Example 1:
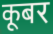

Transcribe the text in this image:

कूबर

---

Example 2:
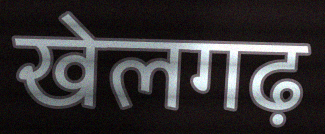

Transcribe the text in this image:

खेलगढ़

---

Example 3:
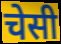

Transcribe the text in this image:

चेसी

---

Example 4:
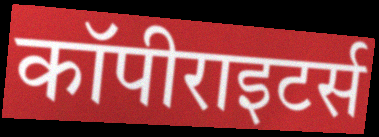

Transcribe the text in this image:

कॉपीराइटर्स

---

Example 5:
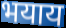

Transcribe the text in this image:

भयाय